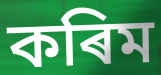
কৰিম